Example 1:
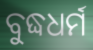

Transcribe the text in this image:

ବୁଦ୍ଧଧର୍ମ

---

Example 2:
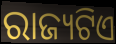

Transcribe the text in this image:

ରାଜ୍ୟଟିଏ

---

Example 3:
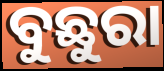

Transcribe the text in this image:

ବୁଛୁରା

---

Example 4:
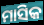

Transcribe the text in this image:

ମାସିକ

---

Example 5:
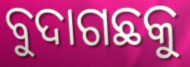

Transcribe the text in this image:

ବୁଦାଗଛକୁ